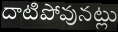
దాటిపోవునట్లు